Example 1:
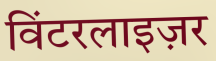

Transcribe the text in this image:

विंटरलाइज़र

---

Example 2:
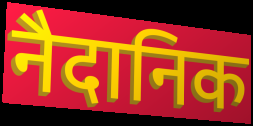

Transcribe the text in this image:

नैदानिक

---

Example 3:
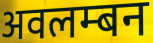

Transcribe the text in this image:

अवलम्बन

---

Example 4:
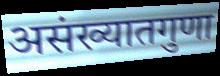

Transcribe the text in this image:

असंख्यातगुणा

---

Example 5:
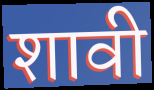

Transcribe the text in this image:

शावी